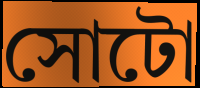
সোটো